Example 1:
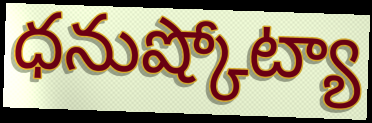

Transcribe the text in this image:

ధనుష్కోట్యా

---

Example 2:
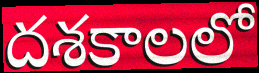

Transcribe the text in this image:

దశకాలలో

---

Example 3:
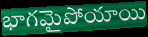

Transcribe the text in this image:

భాగమైపోయాయి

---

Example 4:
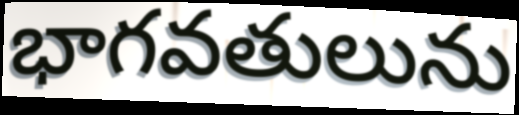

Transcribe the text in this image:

భాగవతులును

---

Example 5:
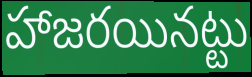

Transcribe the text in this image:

హాజరయినట్టు